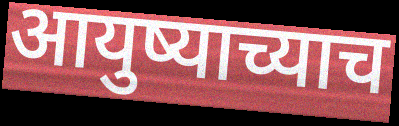
आयुष्याच्याच